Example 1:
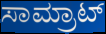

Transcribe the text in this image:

ಸಾಮ್ರಾಟ್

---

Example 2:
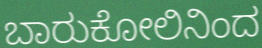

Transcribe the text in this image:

ಬಾರುಕೋಲಿನಿಂದ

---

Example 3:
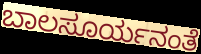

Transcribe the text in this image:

ಬಾಲಸೂರ್ಯನಂತೆ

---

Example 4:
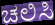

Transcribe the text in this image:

ಚಲಿಸಿ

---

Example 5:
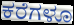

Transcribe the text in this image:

ಕರೆಗಳೂ